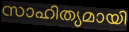
സാഹിത്യമായി